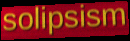
solipsism